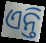
ଏନ୍ତି